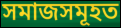
সমাজসমূহত